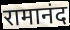
रामानंद